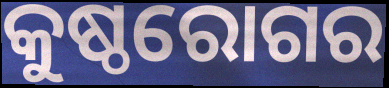
କୁଷ୍ଠରୋଗର